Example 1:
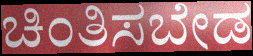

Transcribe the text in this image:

ಚಿಂತಿಸಬೇಡ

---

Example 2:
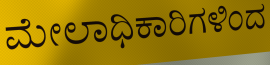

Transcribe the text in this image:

ಮೇಲಾಧಿಕಾರಿಗಳಿಂದ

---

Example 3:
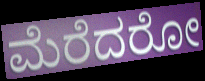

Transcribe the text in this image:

ಮೆರೆದರೋ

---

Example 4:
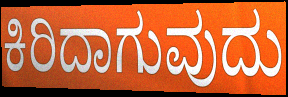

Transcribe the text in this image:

ಕಿರಿದಾಗುವುದು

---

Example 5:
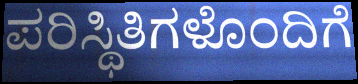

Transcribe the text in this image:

ಪರಿಸ್ಥಿತಿಗಳೊಂದಿಗೆ